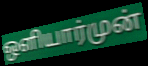
ஒளியார்முன்